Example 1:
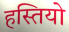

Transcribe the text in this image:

हस्तियो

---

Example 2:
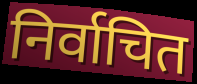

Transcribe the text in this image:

निर्वाचित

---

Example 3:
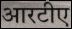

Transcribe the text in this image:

आरटीए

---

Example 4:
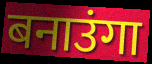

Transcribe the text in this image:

बनाउंगा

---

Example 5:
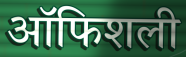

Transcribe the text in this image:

ऑफिशली